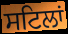
ਸਟਿਲਾਂ